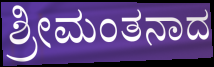
ಶ್ರೀಮಂತನಾದ